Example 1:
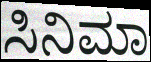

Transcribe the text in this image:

ಸಿನಿಮಾ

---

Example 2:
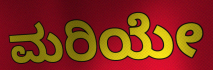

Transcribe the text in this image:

ಮರಿಯೇ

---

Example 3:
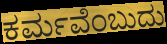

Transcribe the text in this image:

ಕರ್ಮವೆಂಬುದು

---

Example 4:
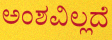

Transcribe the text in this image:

ಅಂಶವಿಲ್ಲದೆ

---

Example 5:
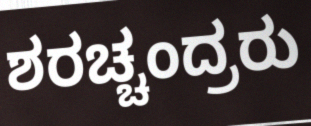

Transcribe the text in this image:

ಶರಚ್ಚಂದ್ರರು